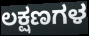
ಲಕ್ಷಣಗಳ